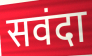
सवंदा